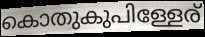
കൊതുകുപിള്ളേര്